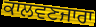
ਕਾਲਵਣਜਾਰਾ